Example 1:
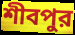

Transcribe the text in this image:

শীবপুর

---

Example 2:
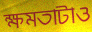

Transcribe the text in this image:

ক্ষমতাটাও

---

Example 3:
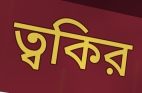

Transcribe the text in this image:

ত্বকির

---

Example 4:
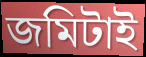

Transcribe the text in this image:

জমিটাই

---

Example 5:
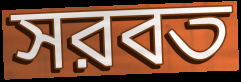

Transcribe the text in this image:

সরবত